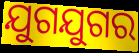
ଯୁଗଯୁଗର